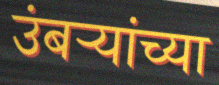
उंबऱ्यांच्या